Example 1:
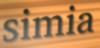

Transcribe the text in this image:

simia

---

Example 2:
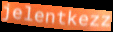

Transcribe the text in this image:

jelentkezz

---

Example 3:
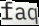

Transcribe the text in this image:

faq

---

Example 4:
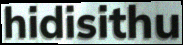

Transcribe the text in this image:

hidisithu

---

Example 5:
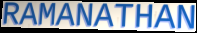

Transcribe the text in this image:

RAMANATHAN